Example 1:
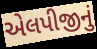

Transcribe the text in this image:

એલપીજીનું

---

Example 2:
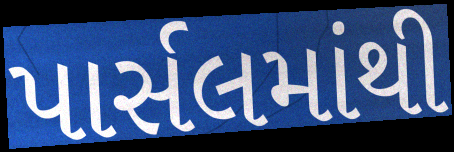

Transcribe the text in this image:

પાર્સલમાંથી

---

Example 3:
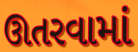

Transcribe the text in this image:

ઊતરવામાં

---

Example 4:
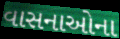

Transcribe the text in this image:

વાસનાઓના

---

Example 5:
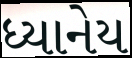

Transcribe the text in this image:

ધ્યાનેય